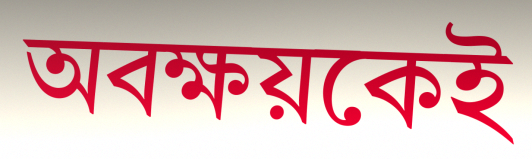
অবক্ষয়কেই